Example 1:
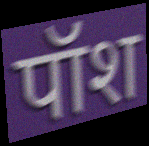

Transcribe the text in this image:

पॉश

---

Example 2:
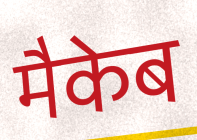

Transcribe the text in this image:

मैकेब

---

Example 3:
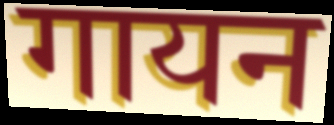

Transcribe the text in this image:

गायन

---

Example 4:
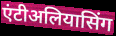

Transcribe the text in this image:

एंटीअलियासिंग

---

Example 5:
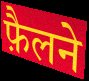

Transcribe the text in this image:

फ़ैलने